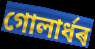
গোলাৰ্ধৰ